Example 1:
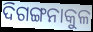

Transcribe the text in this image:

ଦିଗଙ୍ଗନାକୁଳ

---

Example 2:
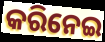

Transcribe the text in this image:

କରିନେଇ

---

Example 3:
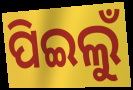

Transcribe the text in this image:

ପିଇଲୁଁ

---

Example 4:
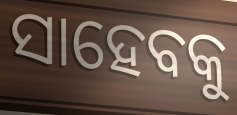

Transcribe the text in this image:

ସାହେବକୁ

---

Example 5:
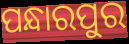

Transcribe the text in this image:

ପନ୍ଧାରପୁର